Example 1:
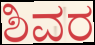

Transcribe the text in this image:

ಶಿವರ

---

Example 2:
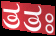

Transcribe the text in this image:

ತತಃ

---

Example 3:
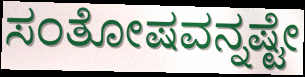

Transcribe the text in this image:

ಸಂತೋಷವನ್ನಷ್ಟೇ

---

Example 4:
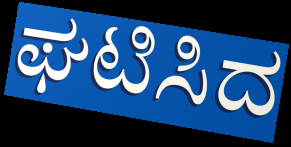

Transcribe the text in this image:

ಘಟಿಸಿದ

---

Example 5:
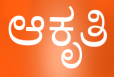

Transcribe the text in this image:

ಆಕೃತಿ